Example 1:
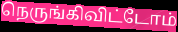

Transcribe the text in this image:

நெருங்கிவிட்டோம்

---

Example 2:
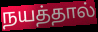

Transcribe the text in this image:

நயத்தால்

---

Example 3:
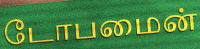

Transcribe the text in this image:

டோபமைன்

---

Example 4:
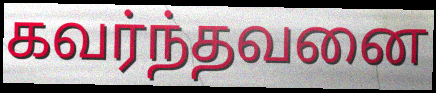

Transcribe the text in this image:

கவர்ந்தவனை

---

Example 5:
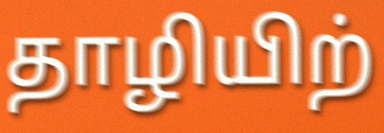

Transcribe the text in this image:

தாழியிற்